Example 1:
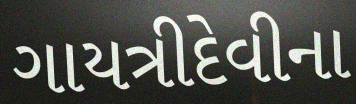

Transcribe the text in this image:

ગાયત્રીદેવીના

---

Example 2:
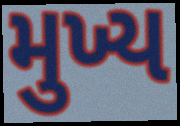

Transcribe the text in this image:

મુખ્ય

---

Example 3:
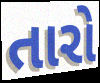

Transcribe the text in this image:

તારો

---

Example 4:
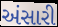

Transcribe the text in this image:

અંસારી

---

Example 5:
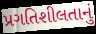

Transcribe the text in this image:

પ્રગતિશીલતાનું